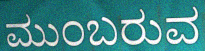
ಮುಂಬರುವ